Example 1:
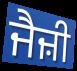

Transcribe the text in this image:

ਜੈਜ਼ੀ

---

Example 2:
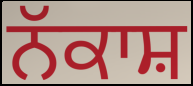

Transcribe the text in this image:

ਨੱਕਾਸ਼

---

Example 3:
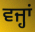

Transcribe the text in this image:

ਵਜ੍ਹਾਂ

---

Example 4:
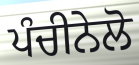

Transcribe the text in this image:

ਪੰਚੀਨੇਲੋ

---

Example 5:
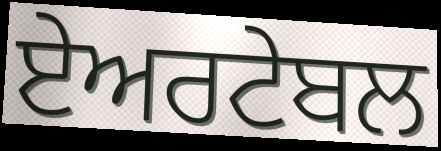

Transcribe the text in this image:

ਏਅਰਟੇਬਲ